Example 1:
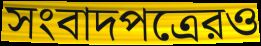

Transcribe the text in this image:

সংবাদপত্রেরও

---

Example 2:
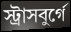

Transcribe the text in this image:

স্ট্রাসবুর্গে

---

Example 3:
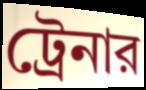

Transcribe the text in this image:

ট্রেনার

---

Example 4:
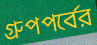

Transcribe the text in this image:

গ্রুপপর্বের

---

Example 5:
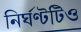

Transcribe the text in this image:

নির্ঘণ্টটিও